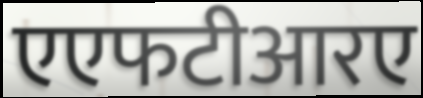
एएफटीआरए